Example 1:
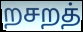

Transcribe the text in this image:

றசறத்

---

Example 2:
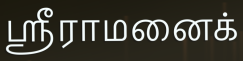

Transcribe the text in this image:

ஸ்ரீராமனைக்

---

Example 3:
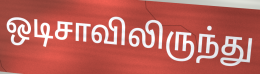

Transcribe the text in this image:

ஒடிசாவிலிருந்து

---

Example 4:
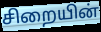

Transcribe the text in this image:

சிறையின்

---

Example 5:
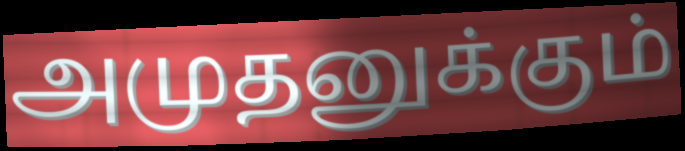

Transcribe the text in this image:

அமுதனுக்கும்